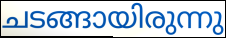
ചടങ്ങായിരുന്നു